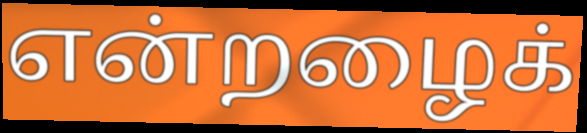
என்றழைக்